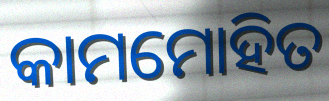
କାମମୋହିତ